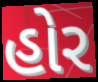
હોર